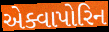
એક્વાપોરિન